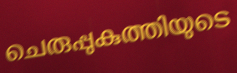
ചെരുപ്പുകുത്തിയുടെ